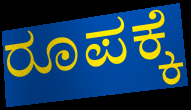
ರೂಪಕ್ಕೆ